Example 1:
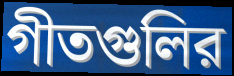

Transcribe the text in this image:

গীতগুলির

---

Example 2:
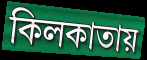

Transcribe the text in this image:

কিলকাতায়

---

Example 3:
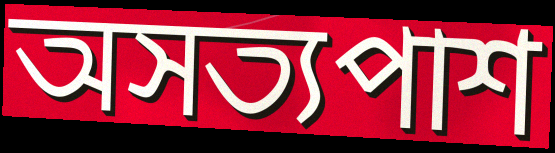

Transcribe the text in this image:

অসত্যপাশ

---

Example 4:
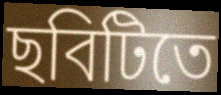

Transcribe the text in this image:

ছবিটিতে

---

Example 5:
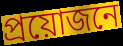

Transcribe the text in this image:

প্রয়োজনে